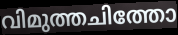
വിമുത്തചിത്തോ